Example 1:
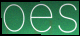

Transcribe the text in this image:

oes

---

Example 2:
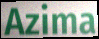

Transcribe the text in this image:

Azima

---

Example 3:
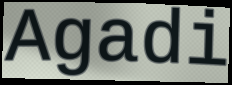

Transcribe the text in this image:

Agadi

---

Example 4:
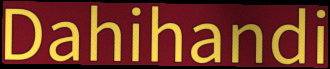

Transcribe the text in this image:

Dahihandi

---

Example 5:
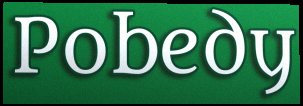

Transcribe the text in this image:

Pobedy